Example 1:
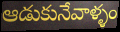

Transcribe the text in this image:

ఆడుకునేవాళ్ళం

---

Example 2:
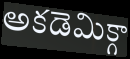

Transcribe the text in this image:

అకడెమిక్గా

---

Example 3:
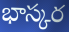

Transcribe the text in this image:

భాస్కర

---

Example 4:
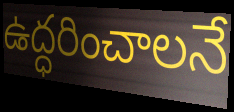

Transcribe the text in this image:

ఉద్ధరించాలనే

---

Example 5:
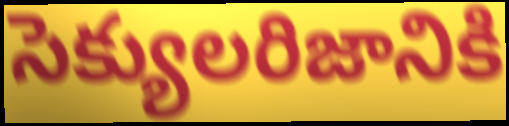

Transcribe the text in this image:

సెక్యులరిజానికి